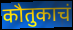
कौतुकाचं